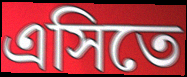
এসিতে